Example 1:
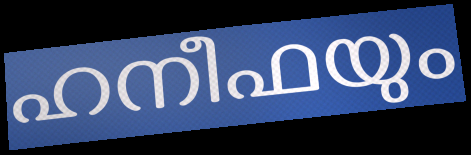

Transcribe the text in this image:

ഹനീഫയും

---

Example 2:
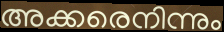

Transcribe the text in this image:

അക്കരെനിന്നും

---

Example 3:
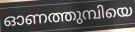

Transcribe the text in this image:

ഓണത്തുമ്പിയെ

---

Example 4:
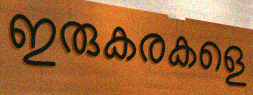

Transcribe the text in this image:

ഇരുകരകളെ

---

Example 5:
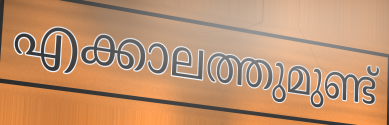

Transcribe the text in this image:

എക്കാലത്തുമുണ്ട്